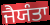
ਜੈਯੰਤਾ